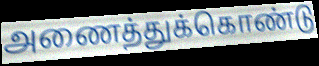
அணைத்துக்கொண்டு